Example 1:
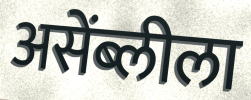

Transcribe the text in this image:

असेंब्लीला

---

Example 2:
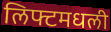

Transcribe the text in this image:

लिफ्टमधली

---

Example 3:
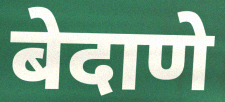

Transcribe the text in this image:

बेदाणे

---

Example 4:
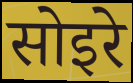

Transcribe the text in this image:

सोइरे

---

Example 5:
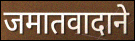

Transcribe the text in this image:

जमातवादाने